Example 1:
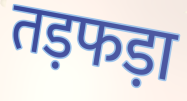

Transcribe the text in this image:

तड़फड़ा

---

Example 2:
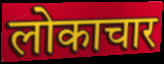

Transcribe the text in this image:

लोकाचार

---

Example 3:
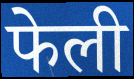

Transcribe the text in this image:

फेली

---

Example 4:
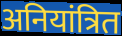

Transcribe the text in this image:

अनियांत्रित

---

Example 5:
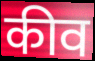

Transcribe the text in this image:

कीव